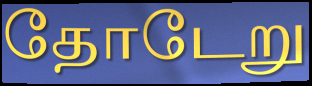
தோடேறு